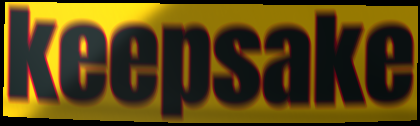
keepsake